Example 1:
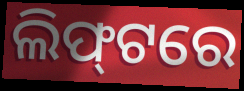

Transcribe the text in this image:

ଲିଫ୍‍ଟରେ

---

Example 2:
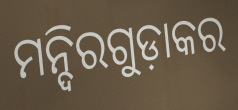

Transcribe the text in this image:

ମନ୍ଦିରଗୁଡ଼ାକର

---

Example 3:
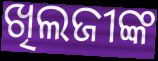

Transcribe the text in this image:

ଖିଲଜୀଙ୍କ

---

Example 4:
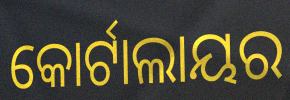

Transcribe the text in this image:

କୋର୍ଟାଲାୟର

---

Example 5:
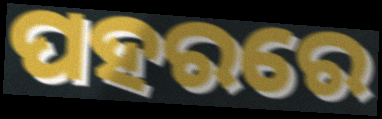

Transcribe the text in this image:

ପହରରେ